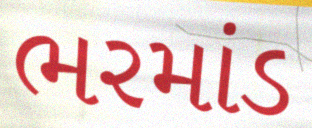
ભરમાંડ